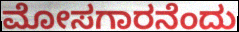
ಮೋಸಗಾರನೆಂದು